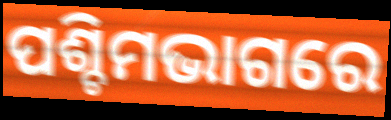
ପଶ୍ଚିମଭାଗରେ